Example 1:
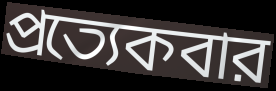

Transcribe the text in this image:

প্রত্যেকবার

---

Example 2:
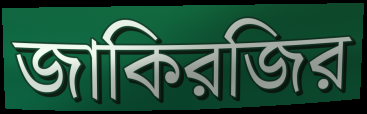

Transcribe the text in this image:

জাকিরজির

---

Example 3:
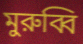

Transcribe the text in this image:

মুরুব্বি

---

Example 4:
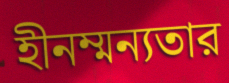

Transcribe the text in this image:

হীনম্মন্যতার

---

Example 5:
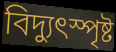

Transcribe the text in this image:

বিদ্যুৎস্পৃষ্ট